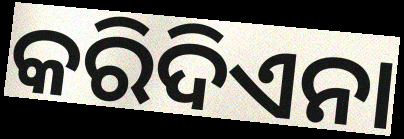
କରିଦିଏନା